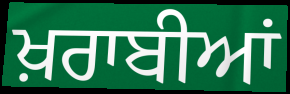
ਖ਼ਰਾਬੀਆਂ